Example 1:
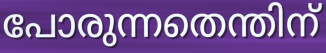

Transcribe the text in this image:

പോരുന്നതെന്തിന്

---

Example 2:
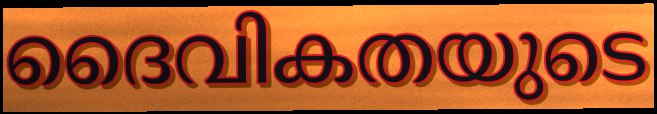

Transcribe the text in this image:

ദൈവികതയുടെ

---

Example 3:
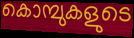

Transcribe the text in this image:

കൊമ്പുകളുടെ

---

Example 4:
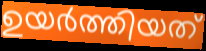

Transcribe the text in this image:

ഉയർത്തിയത്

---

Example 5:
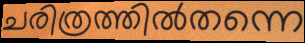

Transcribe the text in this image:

ചരിത്രത്തിൽതന്നെ